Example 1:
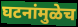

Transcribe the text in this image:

घटनांमुळेच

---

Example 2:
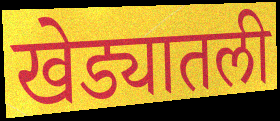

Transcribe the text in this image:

खेड्यातली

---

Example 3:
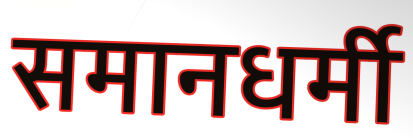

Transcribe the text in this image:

समानधर्मी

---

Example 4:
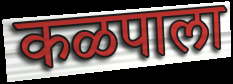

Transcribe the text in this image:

कळपाला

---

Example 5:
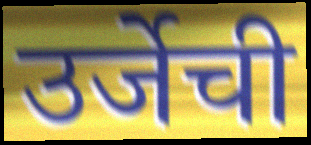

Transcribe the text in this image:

उर्जेची